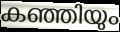
കഞ്ഞിയും